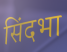
सिंदभा